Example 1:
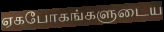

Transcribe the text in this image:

ஏகபோகங்களுடைய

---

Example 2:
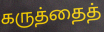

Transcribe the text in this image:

கருத்தைத்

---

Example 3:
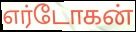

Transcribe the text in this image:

எர்டோகன்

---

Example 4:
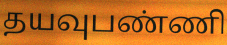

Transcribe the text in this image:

தயவுபண்ணி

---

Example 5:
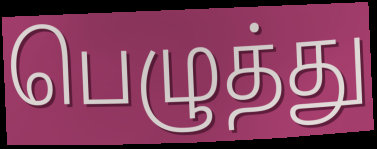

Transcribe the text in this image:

பெழுத்து